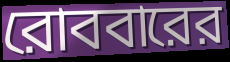
রোববারের